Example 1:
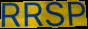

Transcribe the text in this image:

RRSP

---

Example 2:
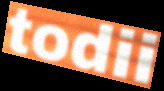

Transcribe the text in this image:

todii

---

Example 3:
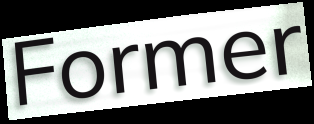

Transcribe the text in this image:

Former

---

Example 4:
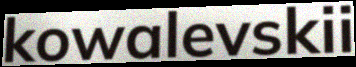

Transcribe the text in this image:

kowalevskii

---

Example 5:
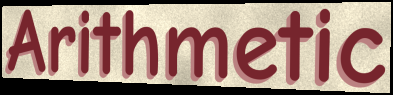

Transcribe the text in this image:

Arithmetic